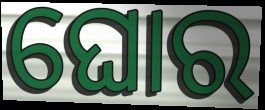
ଘୋର